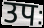
उपः